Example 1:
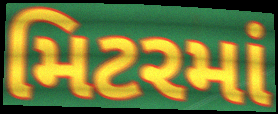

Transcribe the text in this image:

મિટરમાં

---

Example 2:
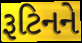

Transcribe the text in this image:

રૂટિનને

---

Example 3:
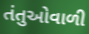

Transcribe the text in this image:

તંતુઓવાળી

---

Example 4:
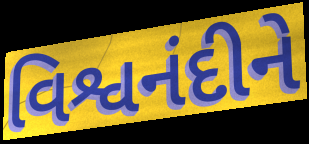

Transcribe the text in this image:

વિશ્વનંદીને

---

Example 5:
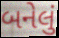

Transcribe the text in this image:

બનેલું